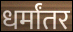
धर्मांतर